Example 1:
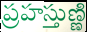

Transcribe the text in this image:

ప్రహస్తుణ్ణి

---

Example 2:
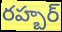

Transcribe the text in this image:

రహ్బర్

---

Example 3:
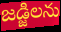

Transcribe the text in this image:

జడ్జిలను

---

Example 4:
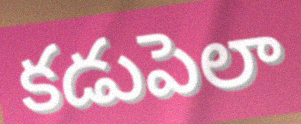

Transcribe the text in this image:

కడుపెలా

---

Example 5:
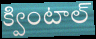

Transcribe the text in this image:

క్వింటాల్